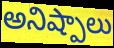
అనిష్పాలు